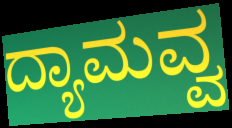
ದ್ಯಾಮವ್ವ